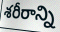
శరీరాన్ని